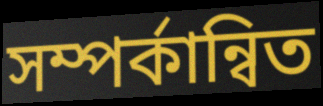
সম্পর্কান্বিত